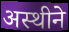
अस्थीने